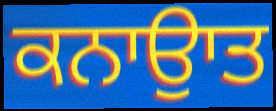
ਕਨਾਉਾਤ